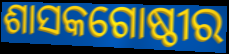
ଶାସକଗୋଷ୍ଠୀର